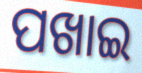
ପଖାଇ